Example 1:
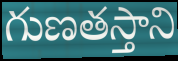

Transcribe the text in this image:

గుణతస్తాని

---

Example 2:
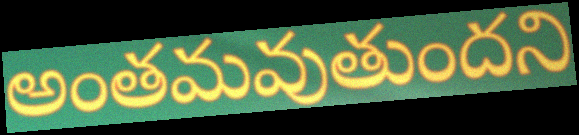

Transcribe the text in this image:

అంతమవుతుందని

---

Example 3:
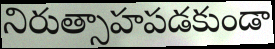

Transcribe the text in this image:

నిరుత్సాహపడకుండా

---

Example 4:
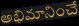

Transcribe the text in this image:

అభిమానించే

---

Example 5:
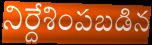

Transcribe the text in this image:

నిర్దేశింపబడిన